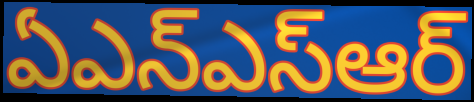
ఏఎన్ఎస్ఆర్